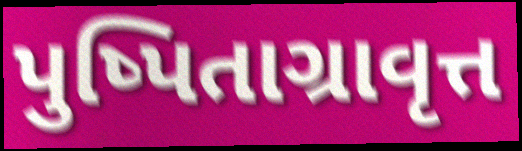
પુષ્પિતાગ્રાવૃત્ત